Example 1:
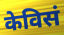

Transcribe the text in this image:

केविसं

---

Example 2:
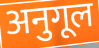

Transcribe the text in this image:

अनुगूल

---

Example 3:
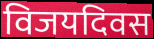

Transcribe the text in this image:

विजयदिवस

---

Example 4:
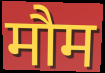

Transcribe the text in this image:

मौम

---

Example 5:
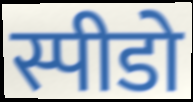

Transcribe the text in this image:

स्पीडो